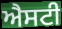
ਐਸਟੀ